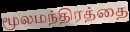
மூலமந்திரத்தை